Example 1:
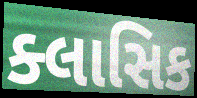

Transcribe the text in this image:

ક્લાસિક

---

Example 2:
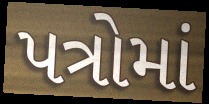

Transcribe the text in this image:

પત્રોમાં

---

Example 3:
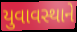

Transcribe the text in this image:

યુવાવસ્થાને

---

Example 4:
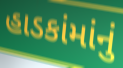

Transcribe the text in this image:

હાડકાંમાંનું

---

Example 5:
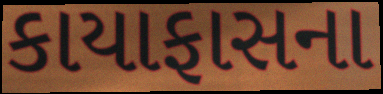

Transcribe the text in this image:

કાયાફાસના